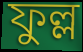
ফুল্ল